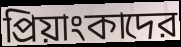
প্রিয়াংকাদের